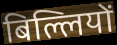
बिल्लियों